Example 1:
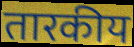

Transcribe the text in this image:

तारकीय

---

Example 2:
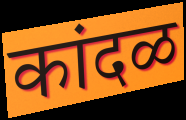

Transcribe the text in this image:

कांदळ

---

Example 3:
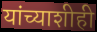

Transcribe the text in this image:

यांच्याशीही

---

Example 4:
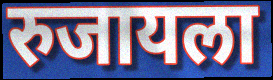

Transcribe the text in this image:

रुजायला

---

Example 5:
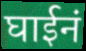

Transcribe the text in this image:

घाईनं